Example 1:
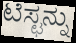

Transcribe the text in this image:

ಟೆಸ್ಟನ್ನು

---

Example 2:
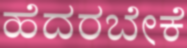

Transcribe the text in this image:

ಹೆದರಬೇಕೆ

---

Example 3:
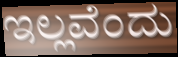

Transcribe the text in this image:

ಇಲ್ಲವೆಂದು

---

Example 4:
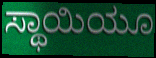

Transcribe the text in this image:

ಸ್ಥಾಯಿಯೂ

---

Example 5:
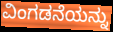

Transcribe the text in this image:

ವಿಂಗಡನೆಯನ್ನು